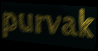
purvak